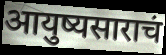
आयुष्यसाराचं